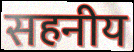
सहनीय